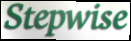
Stepwise